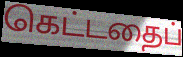
கெட்டதைப்